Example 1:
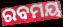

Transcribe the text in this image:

ରବମୟ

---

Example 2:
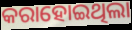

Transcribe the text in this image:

କରାହୋଇଥିଲା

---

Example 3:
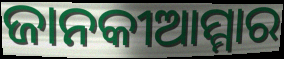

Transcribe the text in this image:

ଜାନକୀଆମ୍ମାର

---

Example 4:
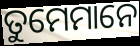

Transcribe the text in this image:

ତୁମେମାନେ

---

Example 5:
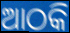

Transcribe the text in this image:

ଆଠକି